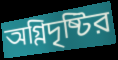
অগ্নিদৃষ্টির